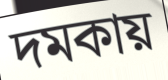
দমকায়